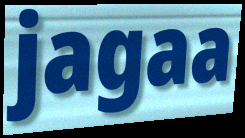
jagaa